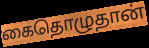
கைதொழுதான்